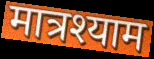
मात्रश्याम